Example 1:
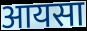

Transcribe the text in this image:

आयसा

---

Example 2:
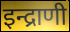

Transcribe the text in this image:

इन्द्राणी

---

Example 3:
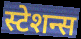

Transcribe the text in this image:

स्टेशन्स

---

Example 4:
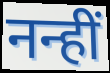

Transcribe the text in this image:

नन्‍हीं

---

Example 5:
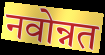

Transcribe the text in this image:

नवोन्नत